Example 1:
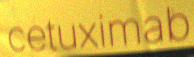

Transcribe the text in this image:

cetuximab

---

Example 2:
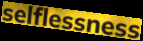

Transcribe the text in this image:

selflessness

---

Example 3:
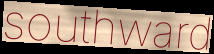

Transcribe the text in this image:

southward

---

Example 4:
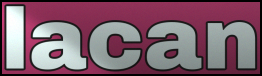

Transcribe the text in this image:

lacan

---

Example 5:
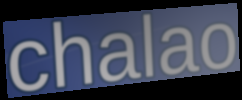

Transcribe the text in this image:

chalao